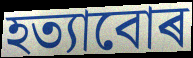
হত্যাবোৰ